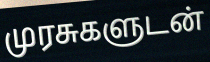
முரசுகளுடன்